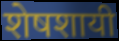
शेषशायी